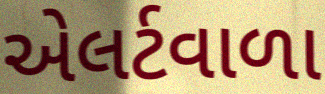
એલર્ટવાળા